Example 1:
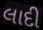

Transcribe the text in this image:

લાદી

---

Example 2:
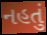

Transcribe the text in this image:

નહતું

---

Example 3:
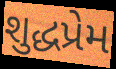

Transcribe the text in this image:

શુદ્ધપ્રેમ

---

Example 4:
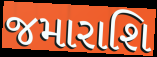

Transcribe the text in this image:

જમારાશિ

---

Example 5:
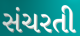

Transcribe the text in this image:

સંચરતી